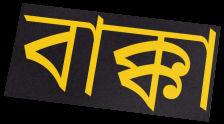
বাক্কা